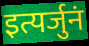
इत्यर्जुनं